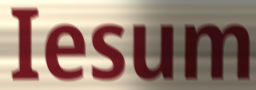
Iesum